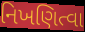
નિખણિત્વા